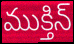
ముక్తిన్